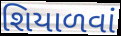
શિયાળવાં